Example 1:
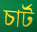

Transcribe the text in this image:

চাৰ্ট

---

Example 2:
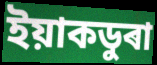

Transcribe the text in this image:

ইয়াকডুৰা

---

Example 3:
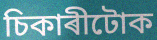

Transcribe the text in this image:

চিকাৰীটোক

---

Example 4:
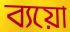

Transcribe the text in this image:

ব্যয়ো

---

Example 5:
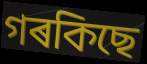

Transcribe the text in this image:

গৰকিছে